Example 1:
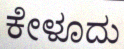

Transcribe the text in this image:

ಕೇಳೂದು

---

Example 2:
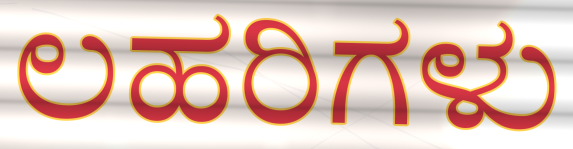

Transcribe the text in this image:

ಲಹರಿಗಳು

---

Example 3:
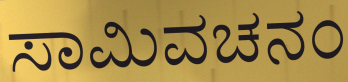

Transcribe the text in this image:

ಸಾಮಿವಚನಂ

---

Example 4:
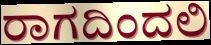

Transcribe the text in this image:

ರಾಗದಿಂದಲಿ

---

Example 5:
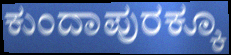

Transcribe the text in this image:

ಕುಂದಾಪುರಕ್ಕೂ